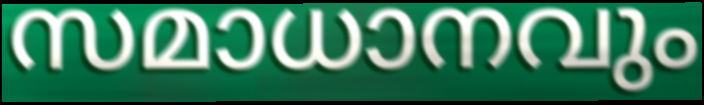
സമാധാനവും